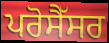
ਪਰੋਸੈੱਸਰ